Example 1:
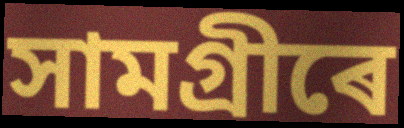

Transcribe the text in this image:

সামগ্ৰীৰে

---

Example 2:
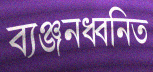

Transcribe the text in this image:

ব্যঞ্জনধ্বনিত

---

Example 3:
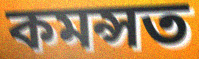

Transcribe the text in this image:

কমন্সত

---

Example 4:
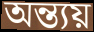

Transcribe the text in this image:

অন্ত্যয়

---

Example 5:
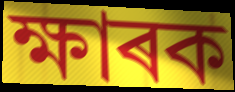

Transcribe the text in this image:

ক্ষাৰক